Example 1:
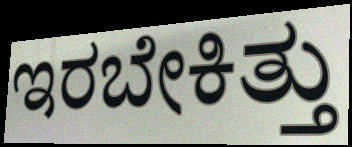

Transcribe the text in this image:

ಇರಬೇಕಿತ್ತು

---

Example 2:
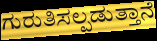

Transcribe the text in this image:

ಗುರುತಿಸಲ್ಪಡುತ್ತಾನೆ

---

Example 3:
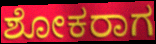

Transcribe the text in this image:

ಶೋಕರಾಗ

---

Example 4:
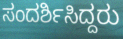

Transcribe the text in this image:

ಸಂದರ್ಶಿಸಿದ್ದರು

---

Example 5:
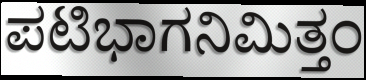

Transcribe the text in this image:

ಪಟಿಭಾಗನಿಮಿತ್ತಂ